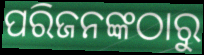
ପରିଜନଙ୍କଠାରୁ